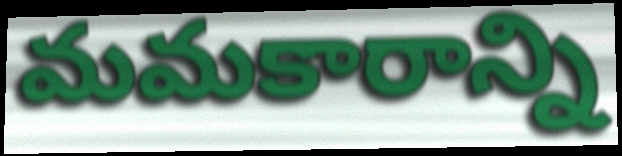
మమకారాన్ని